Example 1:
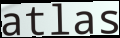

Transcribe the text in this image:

atlas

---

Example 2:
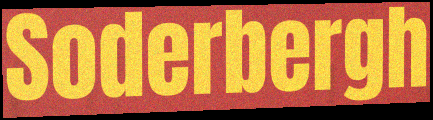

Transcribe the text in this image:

Soderbergh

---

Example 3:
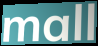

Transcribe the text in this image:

mall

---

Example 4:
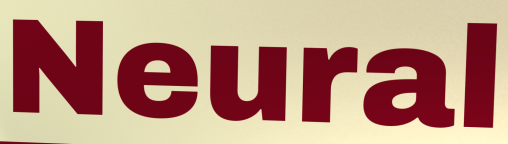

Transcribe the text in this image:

Neural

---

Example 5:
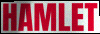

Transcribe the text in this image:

HAMLET